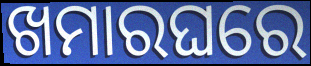
ଖମାରଘରେ